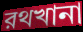
রথখানা